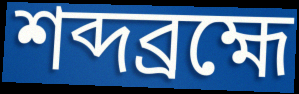
শব্দব্রহ্মে